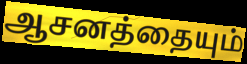
ஆசனத்தையும்